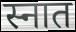
स्नात